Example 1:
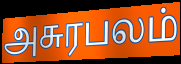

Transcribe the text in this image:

அசுரபலம்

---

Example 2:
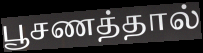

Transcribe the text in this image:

பூசணத்தால்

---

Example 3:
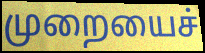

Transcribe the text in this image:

முறையைச்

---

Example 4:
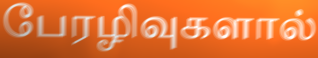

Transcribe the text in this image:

பேரழிவுகளால்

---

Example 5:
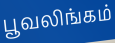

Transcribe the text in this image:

பூவலிங்கம்